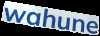
wahune